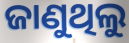
ଜାଣୁଥିଲୁ